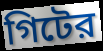
গিটের